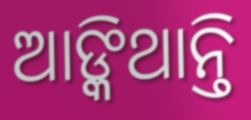
ଆଙ୍କିଥାନ୍ତି